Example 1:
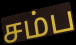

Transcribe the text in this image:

சம்ப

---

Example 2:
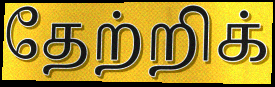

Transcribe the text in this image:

தேற்றிக்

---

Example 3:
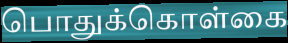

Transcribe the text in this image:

பொதுக்கொள்கை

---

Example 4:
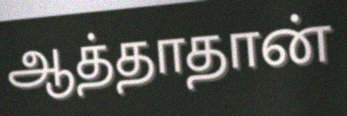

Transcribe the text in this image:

ஆத்தாதான்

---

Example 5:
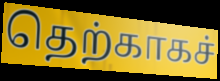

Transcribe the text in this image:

தெற்காகச்